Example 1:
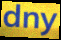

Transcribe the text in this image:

dny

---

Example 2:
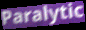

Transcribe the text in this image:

Paralytic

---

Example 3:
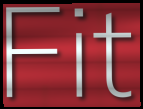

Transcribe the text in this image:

Fit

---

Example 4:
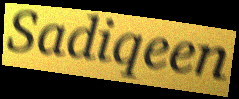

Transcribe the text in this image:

Sadiqeen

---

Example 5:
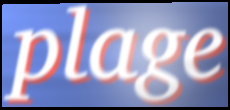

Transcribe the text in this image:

plage